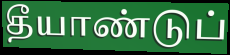
தீயாண்டுப்